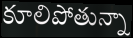
కూలిపోతున్నా